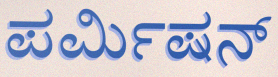
ಪರ್ಮಿಷನ್